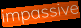
impassive